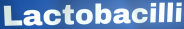
Lactobacilli